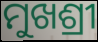
ମୁଖଶ୍ରୀ